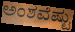
ಅಂಶವೆಷ್ಟು